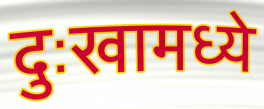
दुःखामध्ये